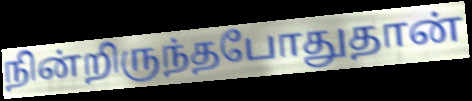
நின்றிருந்தபோதுதான்